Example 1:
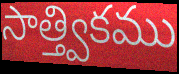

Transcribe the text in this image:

సాత్త్వికము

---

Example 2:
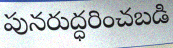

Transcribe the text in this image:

పునరుద్ధరించబడి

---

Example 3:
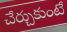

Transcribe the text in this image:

చేర్చుకుంటే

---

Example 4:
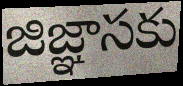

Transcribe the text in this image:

జిజ్ఞాసకు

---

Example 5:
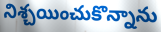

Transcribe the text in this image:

నిశ్చయించుకొన్నాను